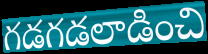
గడగడలాడించి